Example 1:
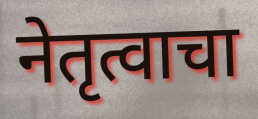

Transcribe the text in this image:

नेतृत्वाचा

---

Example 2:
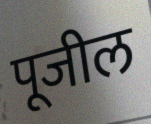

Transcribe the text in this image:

पूजील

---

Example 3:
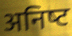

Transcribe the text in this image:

अनिष्‍ट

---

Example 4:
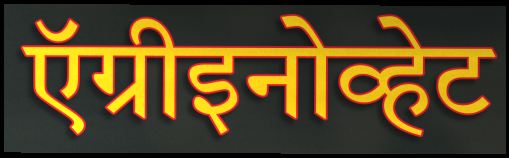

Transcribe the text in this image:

ऍग्रीइनोव्हेट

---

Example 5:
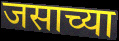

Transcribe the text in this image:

जसाच्या